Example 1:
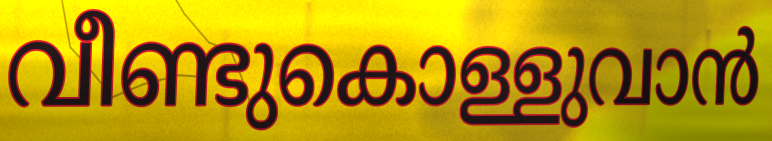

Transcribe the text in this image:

വീണ്ടുകൊള്ളുവാൻ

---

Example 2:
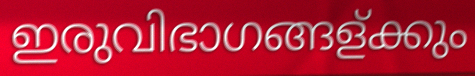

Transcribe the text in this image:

ഇരുവിഭാഗങ്ങള്ക്കും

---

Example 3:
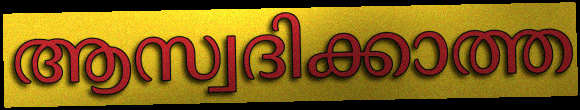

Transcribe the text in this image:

ആസ്വദിക്കാത്ത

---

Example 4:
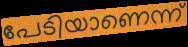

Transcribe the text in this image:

പേടിയാണെന്ന്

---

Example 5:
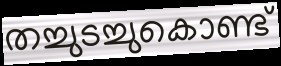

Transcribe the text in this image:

തച്ചുടച്ചുകൊണ്ട്